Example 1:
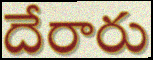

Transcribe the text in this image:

దేరారు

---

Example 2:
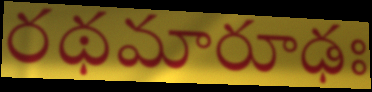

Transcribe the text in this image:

రథమారూఢః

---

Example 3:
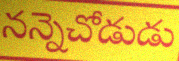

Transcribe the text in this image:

నన్నెచోడుడు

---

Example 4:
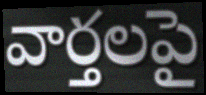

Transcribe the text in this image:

వార్తలపై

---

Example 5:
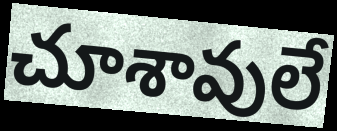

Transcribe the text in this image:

చూశావులే